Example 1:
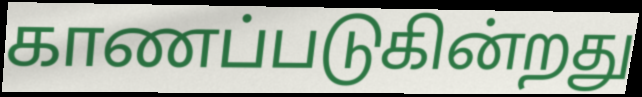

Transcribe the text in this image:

காணப்படுகின்றது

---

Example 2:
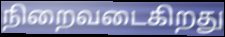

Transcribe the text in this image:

நிறைவடைகிறது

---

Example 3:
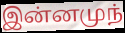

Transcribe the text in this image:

இன்னமுந்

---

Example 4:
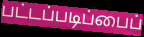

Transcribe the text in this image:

பட்டப்படிப்பைப்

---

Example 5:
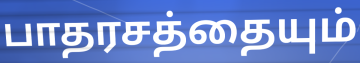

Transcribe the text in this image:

பாதரசத்தையும்